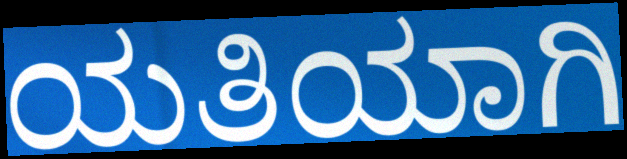
ಯತಿಯಾಗಿ